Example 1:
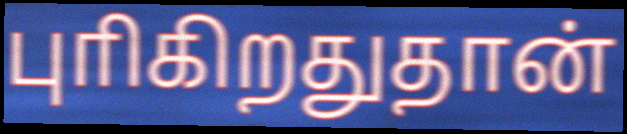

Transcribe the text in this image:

புரிகிறதுதான்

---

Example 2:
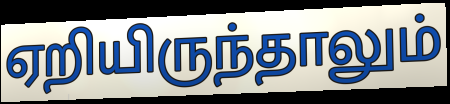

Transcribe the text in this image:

ஏறியிருந்தாலும்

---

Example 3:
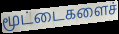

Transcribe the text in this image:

மூட்டைகளைச்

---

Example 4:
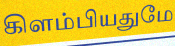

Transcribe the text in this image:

கிளம்பியதுமே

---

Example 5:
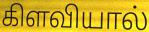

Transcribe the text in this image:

கிளவியால்